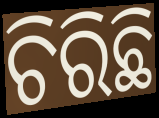
ଚିରିଛି